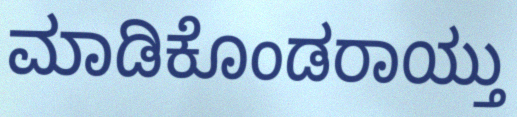
ಮಾಡಿಕೊಂಡರಾಯ್ತು